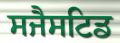
ਸਜੈਸਟਿਡ